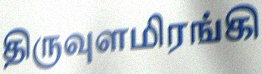
திருவுளமிரங்கி